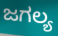
ಜಗಲ್ಯ